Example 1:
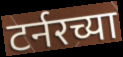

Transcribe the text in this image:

टर्नरच्या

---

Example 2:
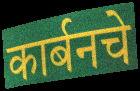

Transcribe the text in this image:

कार्बनचे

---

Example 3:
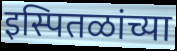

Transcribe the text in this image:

इस्पितळांच्या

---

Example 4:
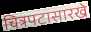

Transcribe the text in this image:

चित्रपटासारखे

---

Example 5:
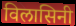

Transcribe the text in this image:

विलासिनी